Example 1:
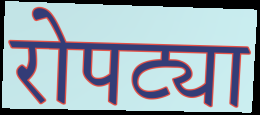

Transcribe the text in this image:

रोपट्या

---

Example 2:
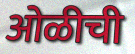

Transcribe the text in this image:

ओळीची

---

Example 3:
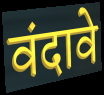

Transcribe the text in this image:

वंदावे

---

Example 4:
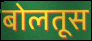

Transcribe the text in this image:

बोलतूस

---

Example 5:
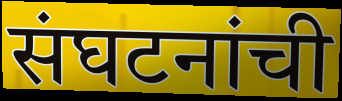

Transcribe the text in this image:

संघटनांची